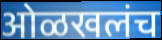
ओळखलंच